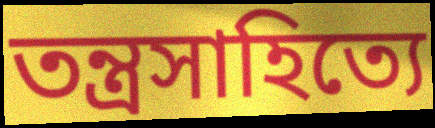
তন্ত্রসাহিত্যে